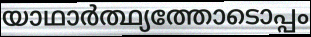
യാഥാർത്ഥ്യത്തോടൊപ്പം